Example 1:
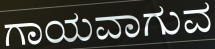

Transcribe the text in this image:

ಗಾಯವಾಗುವ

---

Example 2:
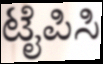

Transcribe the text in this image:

ಟೈಪಿಸಿ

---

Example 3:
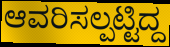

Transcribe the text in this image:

ಆವರಿಸಲ್ಪಟ್ಟಿದ್ದ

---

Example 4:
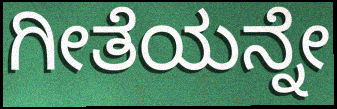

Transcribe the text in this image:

ಗೀತೆಯನ್ನೇ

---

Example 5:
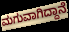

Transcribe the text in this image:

ಮಗುವಾಗಿದ್ದಾನೆ